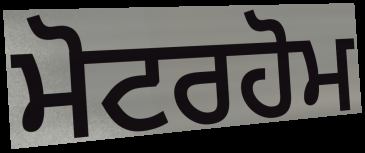
ਮੋਟਰਹੋਮ